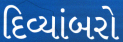
દિવ્યાંબરો